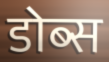
डोब्स